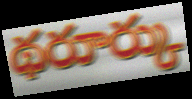
థరూర్కు